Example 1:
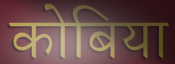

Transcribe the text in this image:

कोबिया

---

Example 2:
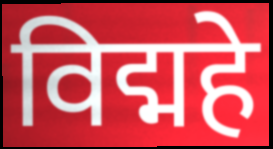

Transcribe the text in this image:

विद्महे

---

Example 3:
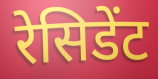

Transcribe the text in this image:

रेसिडेंट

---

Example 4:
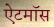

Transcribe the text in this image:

ऐटमॉस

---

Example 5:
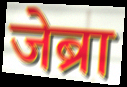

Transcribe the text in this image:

जेब्रा